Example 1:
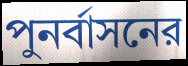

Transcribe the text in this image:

পুনর্বাসনের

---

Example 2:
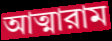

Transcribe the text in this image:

আত্মারাম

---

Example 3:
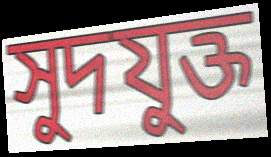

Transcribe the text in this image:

সুদযুক্ত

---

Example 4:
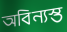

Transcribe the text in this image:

অবিন্যস্ত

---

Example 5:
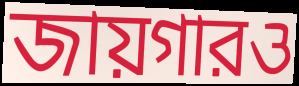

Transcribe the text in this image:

জায়গারও